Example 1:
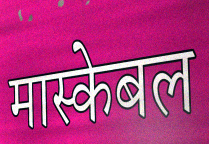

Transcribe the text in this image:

मास्केबल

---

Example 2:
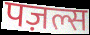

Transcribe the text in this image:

पज़ल्स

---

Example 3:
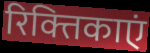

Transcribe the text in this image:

रिक्तिकाएं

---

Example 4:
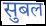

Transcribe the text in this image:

सुबल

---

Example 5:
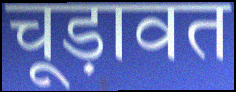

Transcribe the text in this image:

चूड़ावत